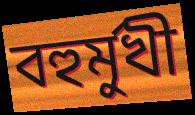
বহুর্মুখী